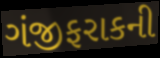
ગંજીફરાકની